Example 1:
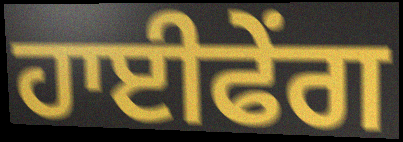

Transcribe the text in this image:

ਹਾਈਫੇਂਗ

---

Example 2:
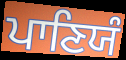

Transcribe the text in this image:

ਪਾਣਿਯੰ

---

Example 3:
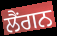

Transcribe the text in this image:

ਲੈਂਗਨ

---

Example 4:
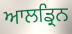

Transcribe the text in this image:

ਆਲਡ੍ਰਿਨ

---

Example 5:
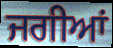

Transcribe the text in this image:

ਜਗੀਆਂ